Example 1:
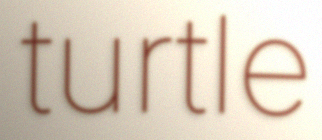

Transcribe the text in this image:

turtle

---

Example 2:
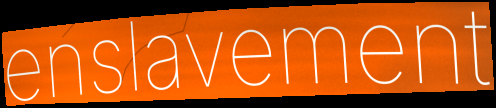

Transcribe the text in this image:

enslavement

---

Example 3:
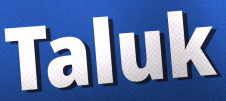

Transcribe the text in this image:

Taluk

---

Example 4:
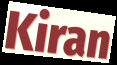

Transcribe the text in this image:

Kiran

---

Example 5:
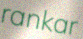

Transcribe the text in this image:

rankar